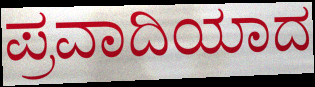
ಪ್ರವಾದಿಯಾದ